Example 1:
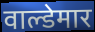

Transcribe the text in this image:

वाल्डेमार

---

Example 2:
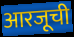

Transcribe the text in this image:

आरजूची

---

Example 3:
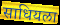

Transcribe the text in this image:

साधियला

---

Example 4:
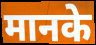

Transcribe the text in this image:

मानके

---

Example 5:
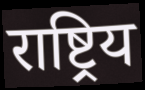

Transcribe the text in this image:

राष्ट्रिय